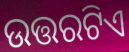
ଉତ୍ତରଟିଏ